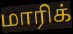
மாரிக்